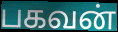
பகவன்